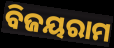
ବିଜୟରାମ